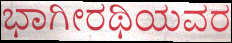
ಭಾಗೀರಥಿಯವರ